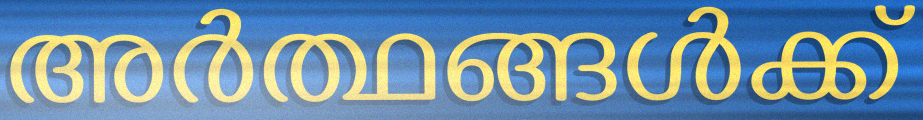
അർത്ഥങ്ങൾക്ക്